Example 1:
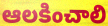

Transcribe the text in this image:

ఆలకించాలి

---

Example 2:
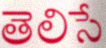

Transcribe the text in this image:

తెలిసే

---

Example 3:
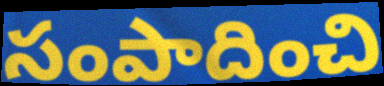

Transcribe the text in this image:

సంపాదించి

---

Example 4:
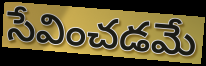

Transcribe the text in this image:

సేవించడమే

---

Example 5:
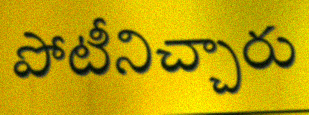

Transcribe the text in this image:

పోటీనిచ్చారు